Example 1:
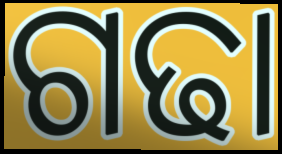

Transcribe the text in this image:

ଗଢା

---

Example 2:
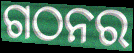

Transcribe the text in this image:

ଗଠନର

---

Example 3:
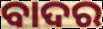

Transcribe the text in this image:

ବାଦର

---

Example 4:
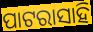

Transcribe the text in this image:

ପାଟରାସାହି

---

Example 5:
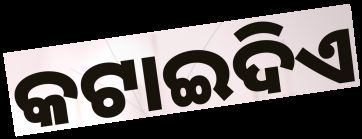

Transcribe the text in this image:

କଟାଇଦିଏ